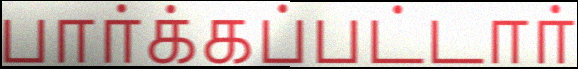
பார்க்கப்பட்டார்